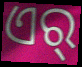
ଏର୍